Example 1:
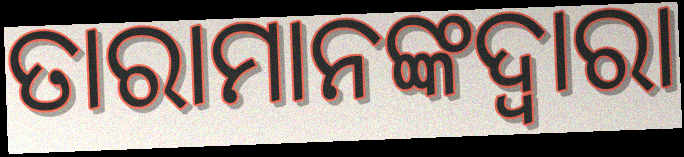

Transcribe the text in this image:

ତାରାମାନଙ୍କଦ୍ୱାରା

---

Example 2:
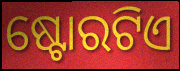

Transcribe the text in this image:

ଷ୍ଟୋରଟିଏ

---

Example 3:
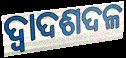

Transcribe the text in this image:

ଦ୍ୱାଦଶଦଳ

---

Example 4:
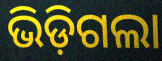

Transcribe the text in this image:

ଭିଡ଼ିଗଲା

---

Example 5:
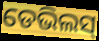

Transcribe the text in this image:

ଡେଭିଲସ୍